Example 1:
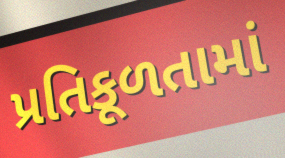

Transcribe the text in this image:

પ્રતિકૂળતામાં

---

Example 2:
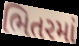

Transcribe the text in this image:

ભિતરમાં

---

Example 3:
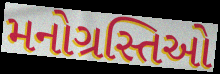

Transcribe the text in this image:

મનોગ્રસ્તિઓ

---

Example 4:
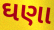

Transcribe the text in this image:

ઘણા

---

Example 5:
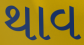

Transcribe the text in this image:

થાવ